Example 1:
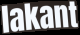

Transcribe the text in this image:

lakant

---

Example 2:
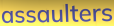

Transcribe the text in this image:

assaulters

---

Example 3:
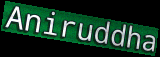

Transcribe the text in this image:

Aniruddha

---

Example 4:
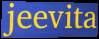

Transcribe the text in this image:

jeevita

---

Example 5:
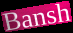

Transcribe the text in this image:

Bansh